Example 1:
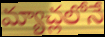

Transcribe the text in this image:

మ్యాచ్లలోనే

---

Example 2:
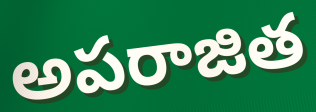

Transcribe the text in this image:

అపరాజిత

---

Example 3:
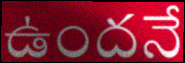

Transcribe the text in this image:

ఉందనే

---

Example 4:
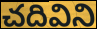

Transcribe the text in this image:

చదివిని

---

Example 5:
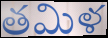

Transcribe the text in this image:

తమిళ